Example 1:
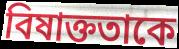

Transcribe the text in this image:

বিষাক্ততাকে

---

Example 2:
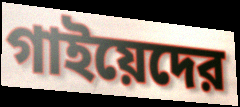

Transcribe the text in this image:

গাইয়েদের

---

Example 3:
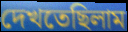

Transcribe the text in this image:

দেখতেছিলাম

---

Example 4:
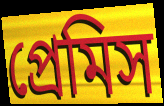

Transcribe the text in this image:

প্রেমিস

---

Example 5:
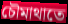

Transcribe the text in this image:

চৌমাথাতে